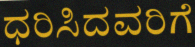
ಧರಿಸಿದವರಿಗೆ